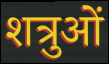
शत्रुओं